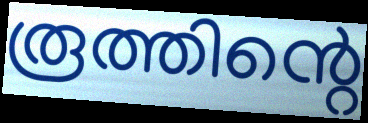
രൂത്തിന്റെ